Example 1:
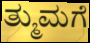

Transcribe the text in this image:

ತ್ಮುಮಗೆ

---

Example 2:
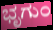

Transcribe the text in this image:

ಭೃಗುಂ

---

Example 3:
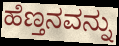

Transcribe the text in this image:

ಹೆಣ್ತನವನ್ನು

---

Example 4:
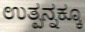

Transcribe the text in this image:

ಉತ್ಪನ್ನಕ್ಕೂ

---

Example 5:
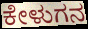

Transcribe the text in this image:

ಕೇಳುಗನ